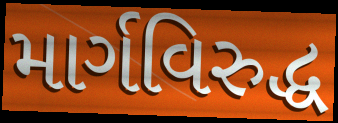
માર્ગવિરુદ્ધ